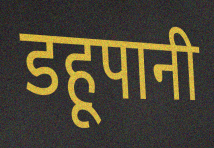
डहूपानी